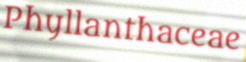
Phyllanthaceae